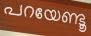
പറയേണ്ടൂ